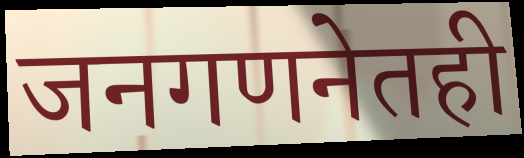
जनगणनेतही